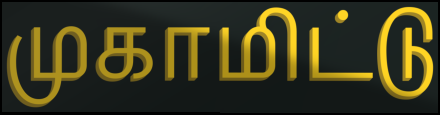
முகாமிட்டு